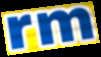
rm